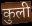
कुली